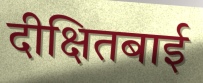
दीक्षितबाई